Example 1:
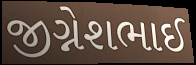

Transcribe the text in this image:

જીગ્નેશભાઈ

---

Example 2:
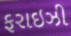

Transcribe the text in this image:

ફરાઇઝી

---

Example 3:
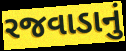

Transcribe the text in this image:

રજવાડાનું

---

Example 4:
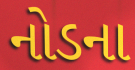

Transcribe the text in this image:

નોડના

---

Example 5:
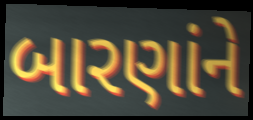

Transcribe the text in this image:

બારણાંને